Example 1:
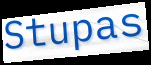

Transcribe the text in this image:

Stupas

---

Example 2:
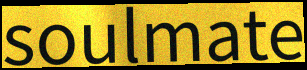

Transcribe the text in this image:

soulmate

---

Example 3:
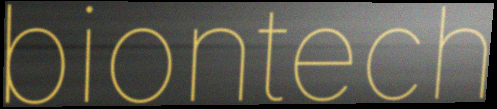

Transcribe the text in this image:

biontech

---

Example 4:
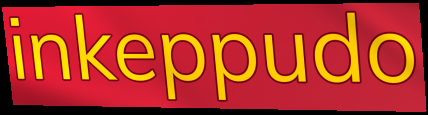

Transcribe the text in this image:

inkeppudo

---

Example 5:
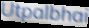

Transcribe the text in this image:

Utpalbhai